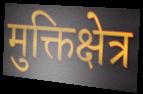
मुक्तिक्षेत्र